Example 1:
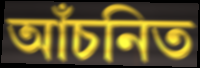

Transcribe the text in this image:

আঁচনিত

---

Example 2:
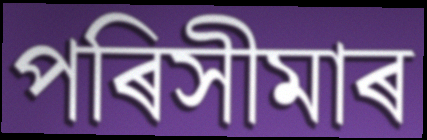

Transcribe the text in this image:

পৰিসীমাৰ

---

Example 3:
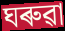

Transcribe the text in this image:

ঘৰুৱা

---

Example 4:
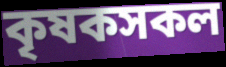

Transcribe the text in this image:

কৃষকসকল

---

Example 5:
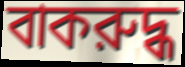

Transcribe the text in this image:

বাকৰুদ্ধ